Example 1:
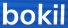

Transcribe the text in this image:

bokil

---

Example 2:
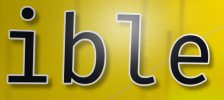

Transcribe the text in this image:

ible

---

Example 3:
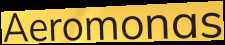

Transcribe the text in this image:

Aeromonas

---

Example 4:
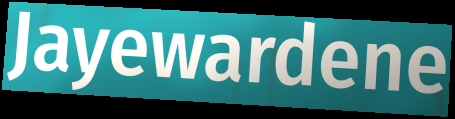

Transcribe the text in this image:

Jayewardene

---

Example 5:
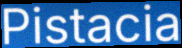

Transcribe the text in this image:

Pistacia